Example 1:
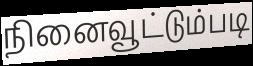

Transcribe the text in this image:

நினைவூட்டும்படி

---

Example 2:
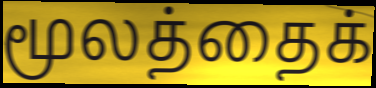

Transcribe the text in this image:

மூலத்தைக்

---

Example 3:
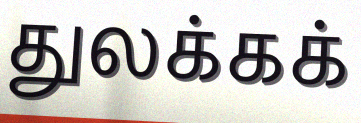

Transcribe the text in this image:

துலக்கக்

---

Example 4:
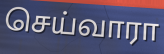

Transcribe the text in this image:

செய்வாரா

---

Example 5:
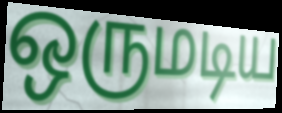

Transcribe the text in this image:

ஒருமடிய